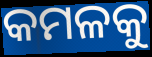
କମଳକୁ